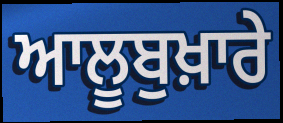
ਆਲੂਬੁਖ਼ਾਰੇ